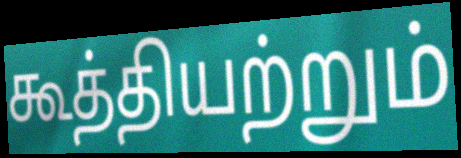
கூத்தியற்றும்